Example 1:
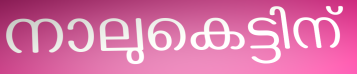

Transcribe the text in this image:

നാലുകെട്ടിന്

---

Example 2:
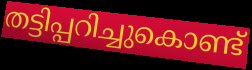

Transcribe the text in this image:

തട്ടിപ്പറിച്ചുകൊണ്ട്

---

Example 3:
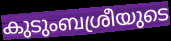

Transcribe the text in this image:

കുടുംബശ്രീയുടെ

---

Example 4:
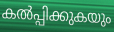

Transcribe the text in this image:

കൽപ്പിക്കുകയും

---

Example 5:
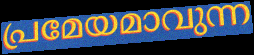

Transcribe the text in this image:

പ്രമേയമാവുന്ന